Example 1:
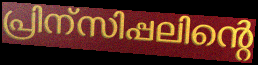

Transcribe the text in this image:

പ്രിന്സിപ്പലിന്റെ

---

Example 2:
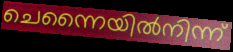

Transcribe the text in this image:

ചെന്നൈയിൽനിന്ന്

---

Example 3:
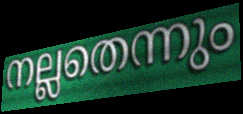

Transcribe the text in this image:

നല്ലതെന്നും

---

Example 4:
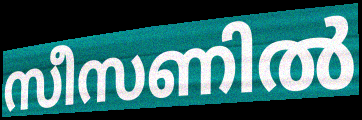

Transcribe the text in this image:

സീസണിൽ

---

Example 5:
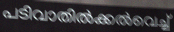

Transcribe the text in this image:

പടിവാതിൽക്കൽവെച്ച്